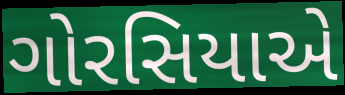
ગોરસિયાએ